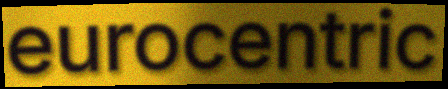
eurocentric